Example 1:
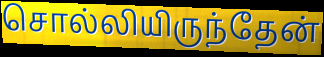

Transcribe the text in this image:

சொல்லியிருந்தேன்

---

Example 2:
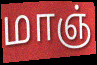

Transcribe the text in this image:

மாஞ்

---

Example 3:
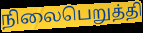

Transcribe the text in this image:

நிலைபெறுத்தி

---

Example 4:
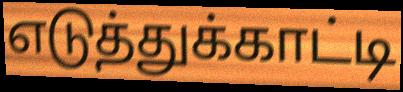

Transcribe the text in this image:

எடுத்துக்காட்டி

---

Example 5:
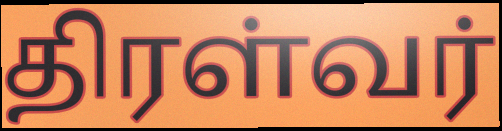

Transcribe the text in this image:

திரள்வர்